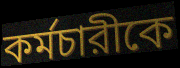
কর্মচারীকে